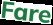
Fare